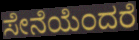
ಸೇನೆಯೆಂದರೆ